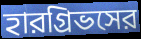
হারগ্রিভসের